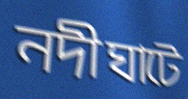
নদীঘাটে